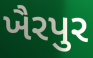
ખૈરપુર